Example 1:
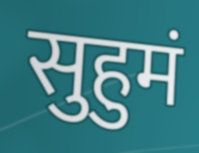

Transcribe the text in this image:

सुहुमं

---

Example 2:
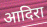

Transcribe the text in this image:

आदिरा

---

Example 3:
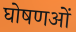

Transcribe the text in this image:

घोषणओं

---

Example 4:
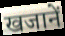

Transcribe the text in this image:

खजानें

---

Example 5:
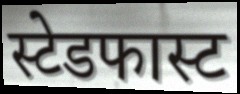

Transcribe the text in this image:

स्टेडफास्ट